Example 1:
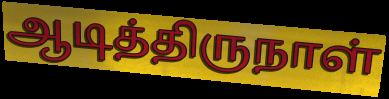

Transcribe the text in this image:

ஆடித்திருநாள்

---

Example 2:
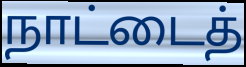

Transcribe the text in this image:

நாட்டைத்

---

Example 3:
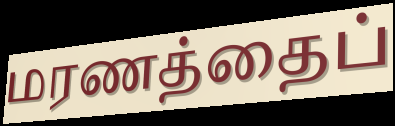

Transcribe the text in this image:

மரணத்தைப்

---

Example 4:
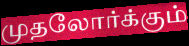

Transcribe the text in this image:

முதலோர்க்கும்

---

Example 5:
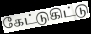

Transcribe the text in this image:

கேட்டுகிட்டு